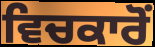
ਵਿਚਕਾਰੋਂ